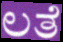
ಲತೆ